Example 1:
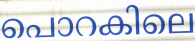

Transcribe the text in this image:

പൊറകിലെ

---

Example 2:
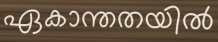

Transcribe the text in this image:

ഏകാന്തതയിൽ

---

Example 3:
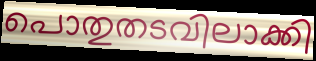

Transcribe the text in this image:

പൊതുതടവിലാക്കി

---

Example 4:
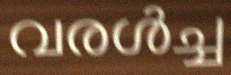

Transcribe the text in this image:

വരൾച്ച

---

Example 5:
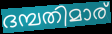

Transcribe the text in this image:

ദമ്പതിമാര്